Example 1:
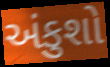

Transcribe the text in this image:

અંકુશો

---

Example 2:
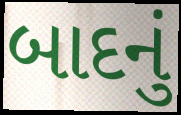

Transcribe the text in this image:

બાદનું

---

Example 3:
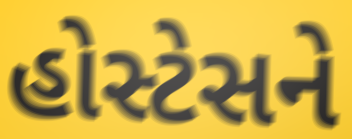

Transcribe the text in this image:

હોસ્ટેસને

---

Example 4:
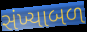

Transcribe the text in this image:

સંખ્યાબળ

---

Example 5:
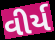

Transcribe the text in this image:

વીર્ય